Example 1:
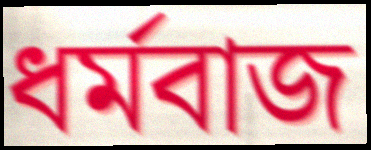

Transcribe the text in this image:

ধর্মবাজ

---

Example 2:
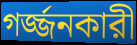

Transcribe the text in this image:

গর্জ্জনকারী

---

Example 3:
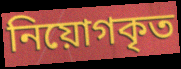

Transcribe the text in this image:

নিয়োগকৃত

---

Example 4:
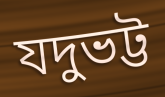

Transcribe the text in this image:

যদুভট্ট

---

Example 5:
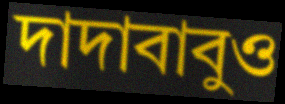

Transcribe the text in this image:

দাদাবাবুও